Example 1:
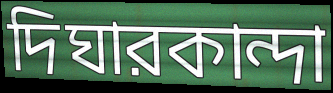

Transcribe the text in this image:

দিঘারকান্দা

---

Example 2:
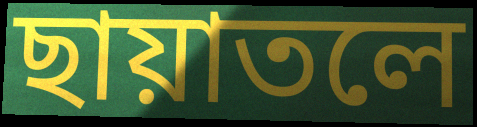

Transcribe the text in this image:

ছায়াতলে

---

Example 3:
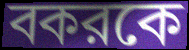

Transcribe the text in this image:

বকরকে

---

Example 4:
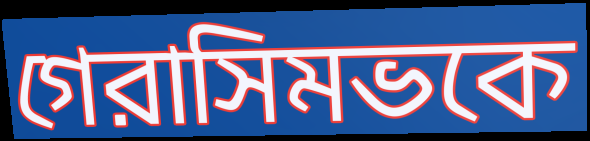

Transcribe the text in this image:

গেরাসিমভকে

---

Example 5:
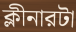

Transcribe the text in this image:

ক্লীনারটা